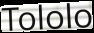
Tololo